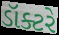
ડૉક્ટરે